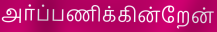
அர்ப்பணிக்கின்றேன்